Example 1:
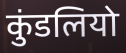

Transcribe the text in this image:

कुंडलियो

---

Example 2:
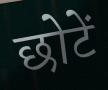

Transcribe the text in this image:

छोटें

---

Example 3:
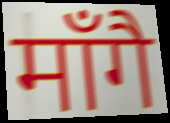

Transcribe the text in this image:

माँगै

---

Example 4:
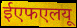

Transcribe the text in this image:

ईएफएलयू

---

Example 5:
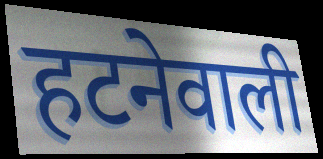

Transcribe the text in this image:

हटनेवाली